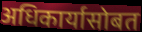
अधिकार्यासोबत